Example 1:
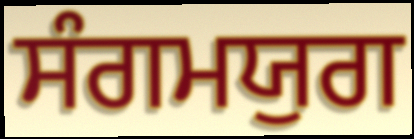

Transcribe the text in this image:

ਸੰਗਮਯੁਗ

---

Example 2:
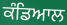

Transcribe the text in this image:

ਕੰਡਿਆਲ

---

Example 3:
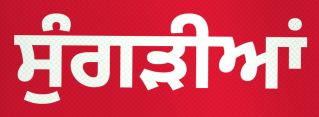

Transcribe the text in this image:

ਸੁੰਗੜੀਆਂ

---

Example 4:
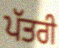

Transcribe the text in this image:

ਪੱਤਰੀ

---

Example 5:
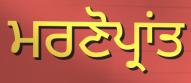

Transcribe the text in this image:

ਮਰਣੋਪ੍ਰਾਂਤ